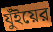
যুঁইয়ের